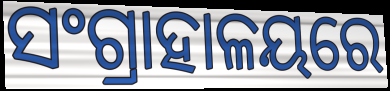
ସଂଗ୍ରାହାଳୟରେ